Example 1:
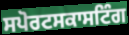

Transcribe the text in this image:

ਸਪੋਰਟਸਕਾਸਟਿੰਗ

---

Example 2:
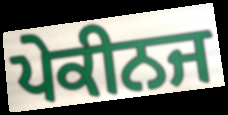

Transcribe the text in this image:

ਪੇਕੀਨਜ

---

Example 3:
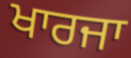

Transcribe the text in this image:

ਖਾਰਜਾ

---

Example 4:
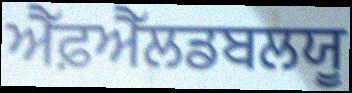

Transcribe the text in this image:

ਐੱਫ਼ਐੱਲਡਬਲਯੂ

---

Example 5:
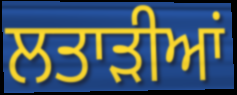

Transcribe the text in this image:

ਲਤਾੜੀਆਂ